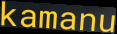
kamanu